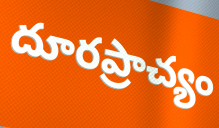
దూరప్రాచ్యం